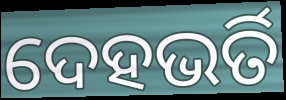
ଦେହଭର୍ତି